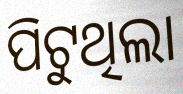
ପିଟୁଥିଲା